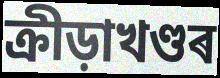
ক্ৰীড়াখণ্ডৰ